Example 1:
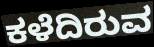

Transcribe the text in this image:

ಕಳೆದಿರುವ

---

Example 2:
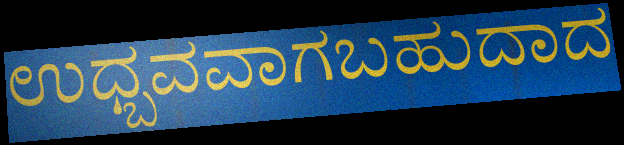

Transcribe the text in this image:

ಉಧ್ಬವವಾಗಬಹುದಾದ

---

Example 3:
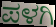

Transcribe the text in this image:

ಪಳಗಿ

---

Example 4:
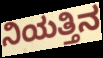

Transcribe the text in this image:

ನಿಯತ್ತಿನ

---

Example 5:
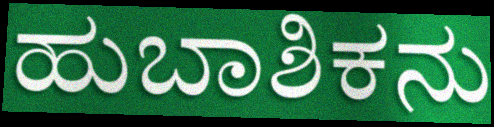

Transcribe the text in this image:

ಹುಬಾಶಿಕನು